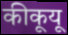
कीकूयू